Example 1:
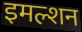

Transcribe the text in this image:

इमल्शन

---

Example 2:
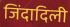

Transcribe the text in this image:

जिंदादिली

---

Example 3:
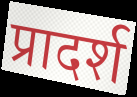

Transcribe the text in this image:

प्रादर्श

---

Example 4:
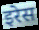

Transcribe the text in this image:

इरेस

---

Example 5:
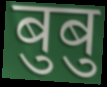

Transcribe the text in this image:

बुबु